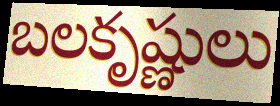
బలకృష్ణులు